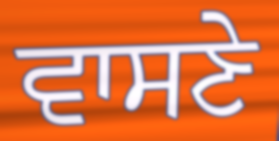
ਵਾਸਣੇ